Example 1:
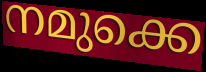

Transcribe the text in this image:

നമുക്കെ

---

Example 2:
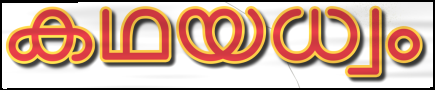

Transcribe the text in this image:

കഥയധ്വം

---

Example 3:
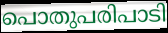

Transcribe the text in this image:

പൊതുപരിപാടി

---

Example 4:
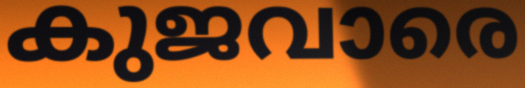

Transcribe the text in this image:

കുജവാരെ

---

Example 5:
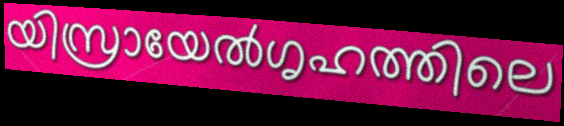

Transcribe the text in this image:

യിസ്രായേൽഗൃഹത്തിലെ